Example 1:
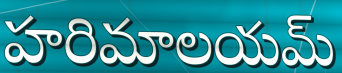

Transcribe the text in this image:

హరిమాలయమ్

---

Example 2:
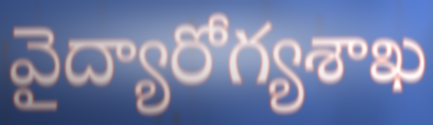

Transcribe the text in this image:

వైద్యారోగ్యశాఖ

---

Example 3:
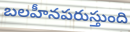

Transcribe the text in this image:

బలహీనపరుస్తుంది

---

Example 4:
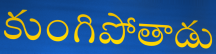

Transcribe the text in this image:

కుంగిపోతాడు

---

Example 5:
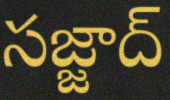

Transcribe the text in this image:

సజ్జాద్